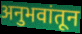
अनुभवांतून